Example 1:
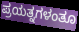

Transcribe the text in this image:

ಪ್ರಯತ್ನಗಳಂತೂ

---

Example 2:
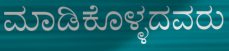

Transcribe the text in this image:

ಮಾಡಿಕೊಳ್ಳದವರು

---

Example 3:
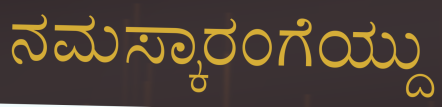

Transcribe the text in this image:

ನಮಸ್ಕಾರಂಗೆಯ್ದು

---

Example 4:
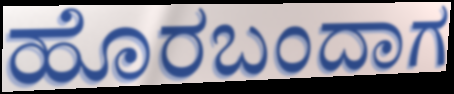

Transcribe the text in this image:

ಹೊರಬಂದಾಗ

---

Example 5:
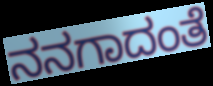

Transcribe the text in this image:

ನನಗಾದಂತೆ